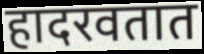
हादरवतात